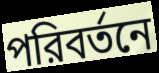
পরিবর্তনে